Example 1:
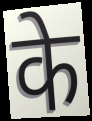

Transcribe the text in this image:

के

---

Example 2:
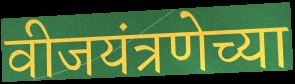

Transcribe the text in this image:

वीजयंत्रणेच्या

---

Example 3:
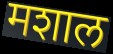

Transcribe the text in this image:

मशाल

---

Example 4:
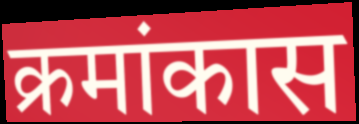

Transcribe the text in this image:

क्रमांकास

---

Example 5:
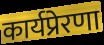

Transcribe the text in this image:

कार्यप्रेरणा